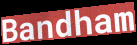
Bandham